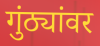
गुंठ्यांवर